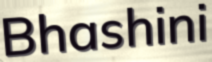
Bhashini